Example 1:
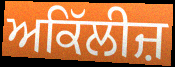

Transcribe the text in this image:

ਅਕਿੱਲੀਜ਼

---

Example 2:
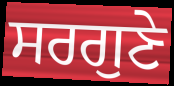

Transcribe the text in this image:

ਸਰਗੁਣੇ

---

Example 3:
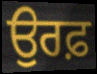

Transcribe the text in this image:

ਉਰਫ਼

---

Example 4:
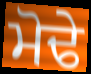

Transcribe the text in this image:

ਮੋਢੇ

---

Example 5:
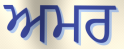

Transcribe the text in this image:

ਅਮਰ